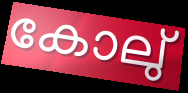
കോലു്